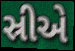
સ્રીએ